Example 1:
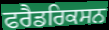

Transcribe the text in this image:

ਫਰੈਡਰਿਕਸਨ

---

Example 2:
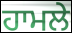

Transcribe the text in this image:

ਹਾਮਲੇ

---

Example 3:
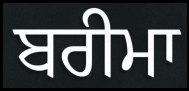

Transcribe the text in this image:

ਬਰੀਮਾ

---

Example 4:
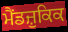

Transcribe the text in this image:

ਮੈਂਡਜ਼ੁਕਿਕ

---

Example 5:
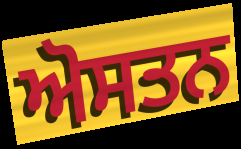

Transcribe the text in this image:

ਅੋਸਤਨ